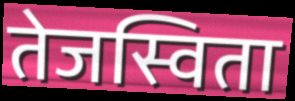
तेजस्विता